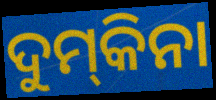
ଦୁମ୍‌କିନା